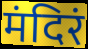
मंदिरं